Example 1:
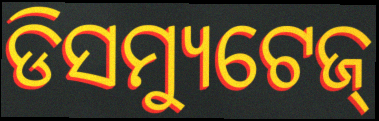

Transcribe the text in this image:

ଡିସମ୍ୟୁଟେଜ୍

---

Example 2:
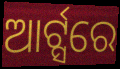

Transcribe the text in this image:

ଆର୍ଟ୍ସରେ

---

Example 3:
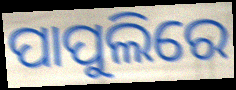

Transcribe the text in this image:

ପାପୁଲିରେ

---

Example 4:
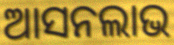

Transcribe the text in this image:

ଆସନଲାଭ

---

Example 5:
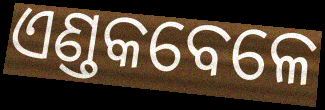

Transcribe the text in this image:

ଏଣ୍ଡକବେଳେ